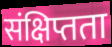
संक्षिप्तता